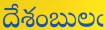
దేశంబులఁ